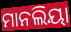
ମାନଲିୟା